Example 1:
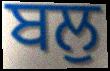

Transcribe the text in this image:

ਬਲੁ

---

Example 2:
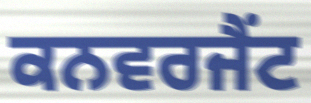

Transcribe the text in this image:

ਕਨਵਰਜੈਂਟ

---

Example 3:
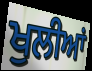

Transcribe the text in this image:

ਖੁਲੀਆਂ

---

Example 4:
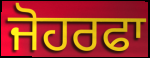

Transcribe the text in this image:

ਜੋਹਰਫਾ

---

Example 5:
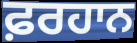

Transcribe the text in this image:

ਫ਼ਰਹਾਨ